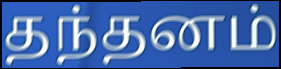
தந்தனம்